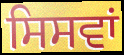
ਸਿਸਵਾਂ